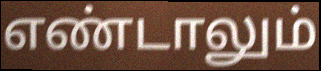
எண்டாலும்